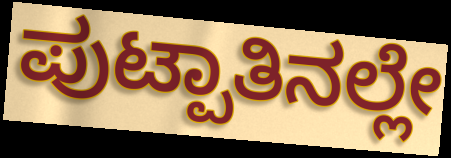
ಪುಟ್ಪಾತಿನಲ್ಲೇ